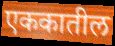
एककातील